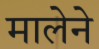
मालेने